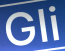
Gli